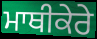
ਮਾਥੀਕੇਰੇ